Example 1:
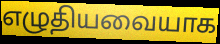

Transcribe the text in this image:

எழுதியவையாக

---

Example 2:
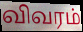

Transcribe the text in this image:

விவரம்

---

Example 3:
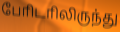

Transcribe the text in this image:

பேரிடரிலிருந்து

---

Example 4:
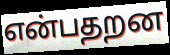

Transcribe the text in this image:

என்பதறன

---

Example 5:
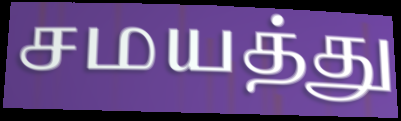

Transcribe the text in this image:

சமயத்து